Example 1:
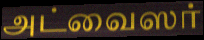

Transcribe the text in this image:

அட்வைஸர்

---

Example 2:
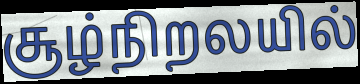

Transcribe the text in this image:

சூழ்நிறலயில்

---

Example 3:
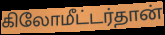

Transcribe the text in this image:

கிலோமீட்டர்தான்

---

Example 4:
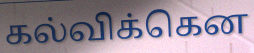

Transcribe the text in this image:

கல்விக்கென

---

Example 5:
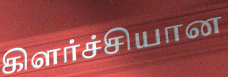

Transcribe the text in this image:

கிளர்ச்சியான